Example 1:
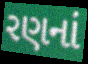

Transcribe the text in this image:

રણનાં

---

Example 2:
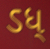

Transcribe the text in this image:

ઽધ્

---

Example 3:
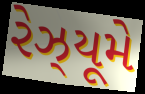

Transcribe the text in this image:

રેઝ્યૂમે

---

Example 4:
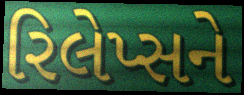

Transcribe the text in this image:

રિલેપ્સને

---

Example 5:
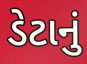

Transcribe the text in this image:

ડેટાનું